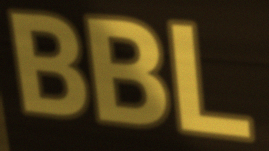
BBL